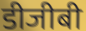
डीजीबी